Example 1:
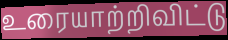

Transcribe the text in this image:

உரையாற்றிவிட்டு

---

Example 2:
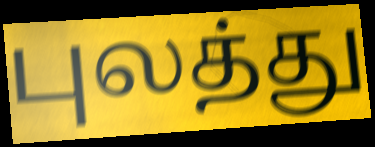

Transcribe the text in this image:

புலத்து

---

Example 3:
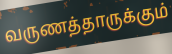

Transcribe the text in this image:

வருணத்தாருக்கும்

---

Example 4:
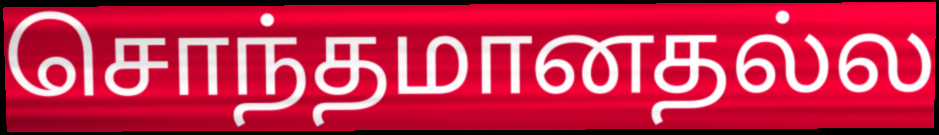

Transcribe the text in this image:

சொந்தமானதல்ல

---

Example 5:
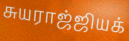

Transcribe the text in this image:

சுயராஜ்ஜியக்